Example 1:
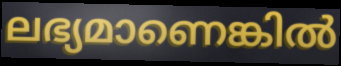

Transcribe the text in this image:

ലഭ്യമാണെങ്കിൽ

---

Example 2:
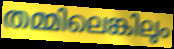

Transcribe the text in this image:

തമ്മിലെങ്കിലും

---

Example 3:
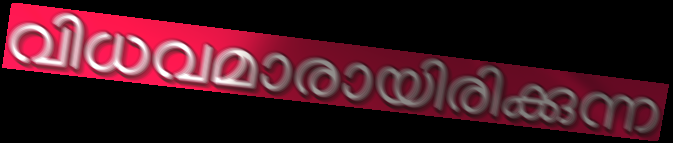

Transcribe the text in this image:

വിധവമാരായിരിക്കുന്ന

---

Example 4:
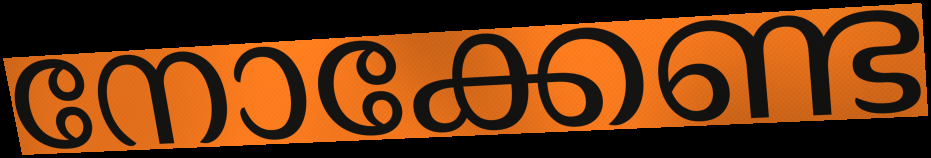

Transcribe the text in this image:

നോക്കേണ്ട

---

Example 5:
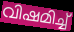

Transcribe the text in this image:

വിഷമിച്ച്